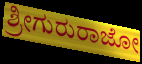
ಶ್ರೀಗುರುರಾಜೋ